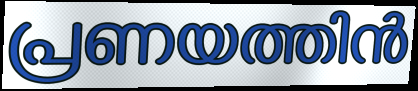
പ്രണയത്തിൻ